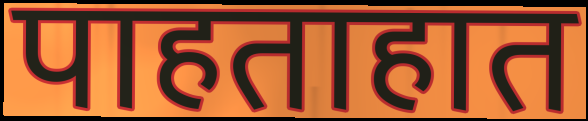
पाहताहात